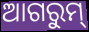
ଆଗରୁମ୍